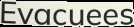
Evacuees